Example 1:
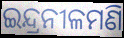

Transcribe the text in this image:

ଇନ୍ଦ୍ରନୀଳମଣି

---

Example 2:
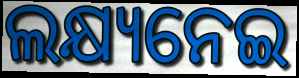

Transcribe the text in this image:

ଲକ୍ଷ୍ୟନେଇ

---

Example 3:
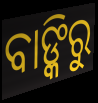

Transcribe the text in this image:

ବାଙ୍କିରୁ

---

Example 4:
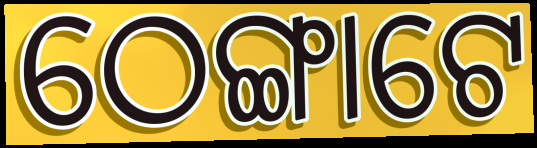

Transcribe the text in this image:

ଠେଙ୍ଗାଟେ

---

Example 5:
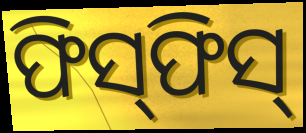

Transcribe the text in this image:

ଫିସ୍‍ଫିସ୍